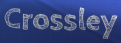
Crossley